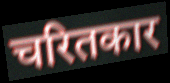
चरितकार